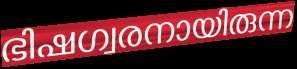
ഭിഷഗ്വരനായിരുന്ന